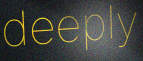
deeply